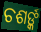
ଚଶର୍ଙ୍କ